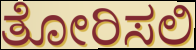
ತೋರಿಸಲಿ